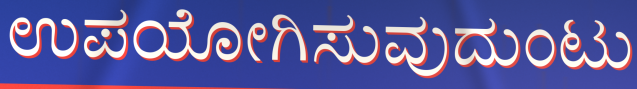
ಉಪಯೋಗಿಸುವುದುಂಟು